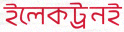
ইলেকট্রনই